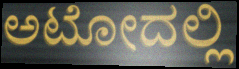
ಅಟೋದಲ್ಲಿ